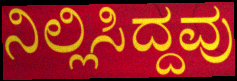
ನಿಲ್ಲಿಸಿದ್ದವು